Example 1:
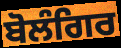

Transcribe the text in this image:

ਬੋਲੰਗਿਰ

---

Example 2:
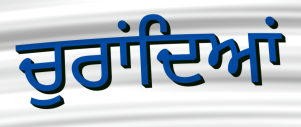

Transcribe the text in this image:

ਚੁਰਾਂਦਿਆਂ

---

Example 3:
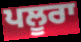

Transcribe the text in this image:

ਪਲੂਰਾ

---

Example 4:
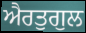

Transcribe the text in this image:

ਐਰਤੁਗੁਲ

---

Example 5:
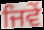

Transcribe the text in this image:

ਜਿਵੇੰ